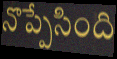
నొప్పేసింది